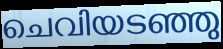
ചെവിയടഞ്ഞു